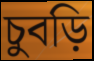
চুবড়ি